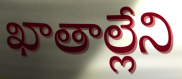
ఖాతాల్లేని